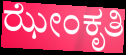
ಝೇಂಕೃತಿ